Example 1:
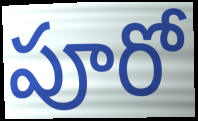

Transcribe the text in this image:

పూరో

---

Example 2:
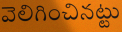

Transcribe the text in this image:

వెలిగించినట్టు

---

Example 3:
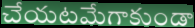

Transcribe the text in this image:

చేయటమేగాకుండా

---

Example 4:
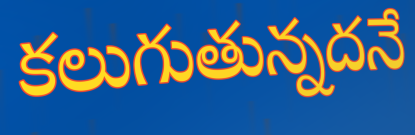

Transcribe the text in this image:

కలుగుతున్నదనే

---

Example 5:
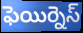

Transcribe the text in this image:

ఫెయిర్నెస్